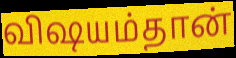
விஷயம்தான்